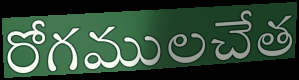
రోగములచేత